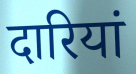
दारियां